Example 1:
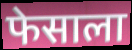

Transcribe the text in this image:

फेसाला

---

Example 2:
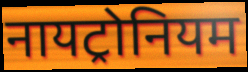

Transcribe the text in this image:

नायट्रोनियम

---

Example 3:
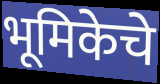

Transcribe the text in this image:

भूमिकेचे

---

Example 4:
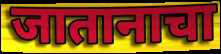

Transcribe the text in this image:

जातानाचा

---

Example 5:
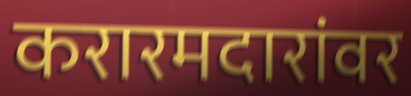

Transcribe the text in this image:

करारमदारांवर